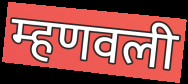
म्हणवली